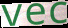
vec